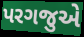
પરગજુએ